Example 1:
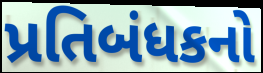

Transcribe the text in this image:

પ્રતિબંધકનો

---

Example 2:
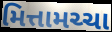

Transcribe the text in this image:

મિત્તામચ્ચા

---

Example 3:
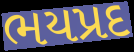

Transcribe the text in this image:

ભયપ્રદ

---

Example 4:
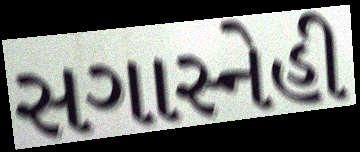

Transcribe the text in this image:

સગાસ્નેહી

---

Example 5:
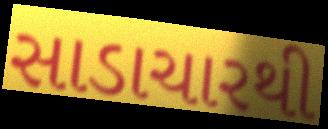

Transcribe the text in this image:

સાડાચારથી